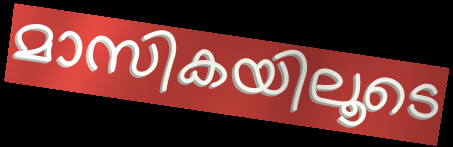
മാസികയിലൂടെ